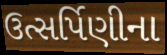
ઉત્સર્પિણીના